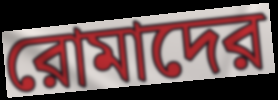
রোমাদের